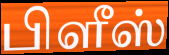
பிளீஸ்